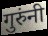
गुरुंनी